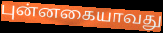
புன்னகையாவது